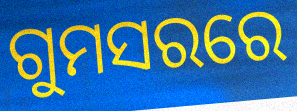
ଗୁମସରରେ